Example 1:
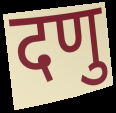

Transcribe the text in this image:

दणु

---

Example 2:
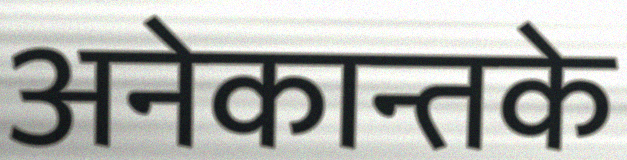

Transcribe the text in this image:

अनेकान्तके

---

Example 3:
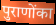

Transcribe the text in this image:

पुराणोंका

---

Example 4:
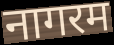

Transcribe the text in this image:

नागरम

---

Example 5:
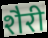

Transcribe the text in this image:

शैरी